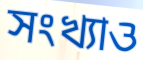
সংখ্যাও